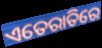
ଏତେରାତିରେ